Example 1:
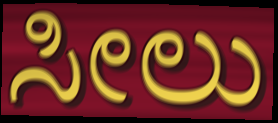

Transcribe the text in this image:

ಸೀಲು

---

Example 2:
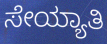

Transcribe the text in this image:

ಸೇಯ್ಯಾತಿ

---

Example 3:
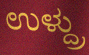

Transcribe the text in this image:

ಉಳ್ದ್ರು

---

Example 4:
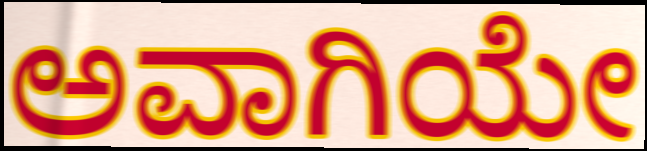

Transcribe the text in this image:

ಅವಾಗಿಯೇ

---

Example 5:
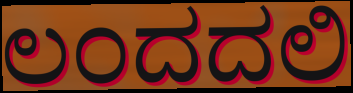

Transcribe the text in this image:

ಲಂದದಲಿ